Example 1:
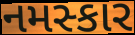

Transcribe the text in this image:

નમસ્કાર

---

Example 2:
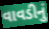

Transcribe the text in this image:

વાવડીનું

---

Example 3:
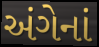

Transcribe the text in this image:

અંગેનાં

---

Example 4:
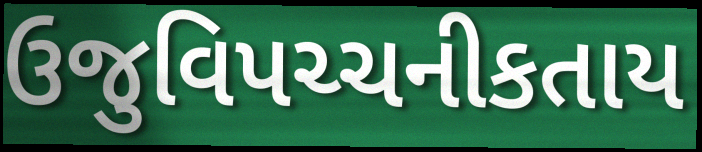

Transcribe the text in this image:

ઉજુવિપચ્ચનીકતાય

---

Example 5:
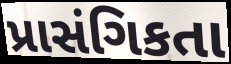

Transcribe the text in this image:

પ્રાસંગિકતા